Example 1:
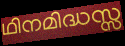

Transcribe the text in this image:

ഥിനമിദ്ധസ്സ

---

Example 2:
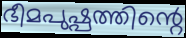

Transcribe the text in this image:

ഭീമപുഷ്പത്തിന്റെ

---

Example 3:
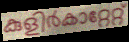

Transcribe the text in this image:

കുളിർകാറ്റേറ്റ്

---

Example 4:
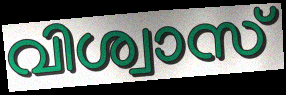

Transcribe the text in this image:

വിശ്വാസ്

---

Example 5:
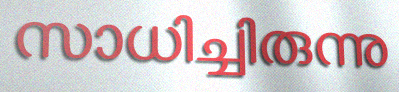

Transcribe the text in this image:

സാധിച്ചിരുന്നു